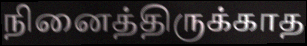
நினைத்திருக்காத